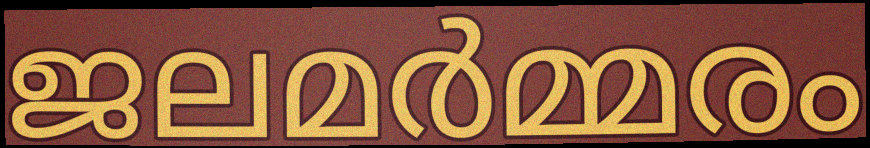
ജലമർമ്മരം